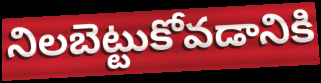
నిలబెట్టుకోవడానికి